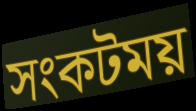
সংকটময়